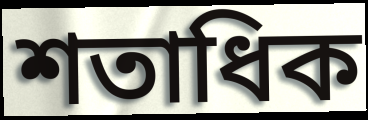
শতাধিক